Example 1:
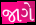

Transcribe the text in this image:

જાગે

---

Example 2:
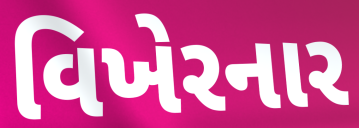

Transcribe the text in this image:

વિખેરનાર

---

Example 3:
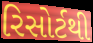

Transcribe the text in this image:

રિસોર્ટથી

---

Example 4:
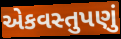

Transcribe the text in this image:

એકવસ્તુપણું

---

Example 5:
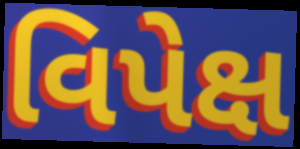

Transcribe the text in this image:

વિપેક્ષ